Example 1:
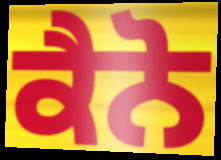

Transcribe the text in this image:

ਕੈਨੋ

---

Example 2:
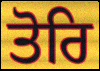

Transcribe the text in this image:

ਤੋਰਿ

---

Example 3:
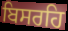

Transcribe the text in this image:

ਬਿਸਰਹਿ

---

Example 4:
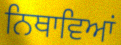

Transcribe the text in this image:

ਨਿਥਾਵਿਆਂ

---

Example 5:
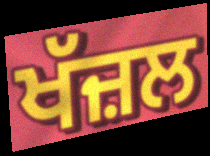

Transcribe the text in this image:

ਖੱਜ਼ਲ